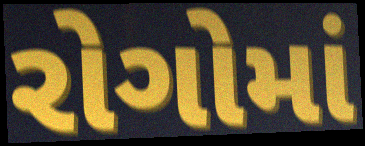
રોગોમાં